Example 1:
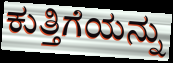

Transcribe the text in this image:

ಕುತ್ತಿಗೆಯನ್ನು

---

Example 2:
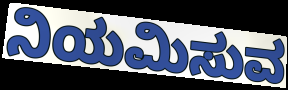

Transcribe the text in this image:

ನಿಯಮಿಸುವ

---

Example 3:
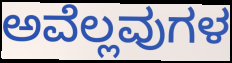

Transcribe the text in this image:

ಅವೆಲ್ಲವುಗಳ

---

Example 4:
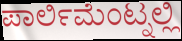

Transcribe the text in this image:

ಪಾರ್ಲಿಮೆಂಟ್ನಲ್ಲಿ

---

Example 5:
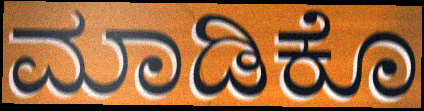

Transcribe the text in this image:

ಮಾಡಿಕೊ